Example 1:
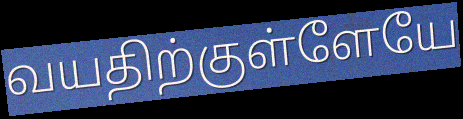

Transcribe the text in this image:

வயதிற்குள்ளேயே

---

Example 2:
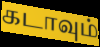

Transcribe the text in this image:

கடாவும்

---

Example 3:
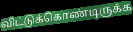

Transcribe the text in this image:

விட்டுக்கொண்டிருக்க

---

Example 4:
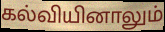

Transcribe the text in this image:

கல்வியினாலும்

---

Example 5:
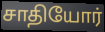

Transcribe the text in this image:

சாதியோர்